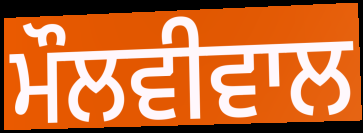
ਮੌਲਵੀਵਾਲ